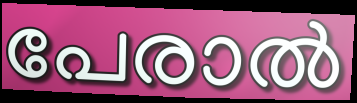
പേരാൽ